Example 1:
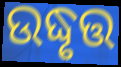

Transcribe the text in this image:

ଉଦ୍ଧୃତ୍ତ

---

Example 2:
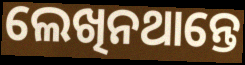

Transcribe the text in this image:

ଲେଖିନଥାନ୍ତେ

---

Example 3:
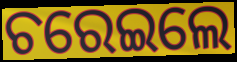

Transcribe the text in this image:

ଚରେଇଲେ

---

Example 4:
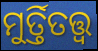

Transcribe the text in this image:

ମୁର୍ତ୍ତିତତ୍ତ୍ବ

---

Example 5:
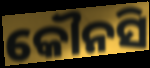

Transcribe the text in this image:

କୌନସି